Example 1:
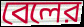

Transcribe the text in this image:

বেলের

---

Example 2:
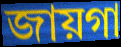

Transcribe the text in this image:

জায়গা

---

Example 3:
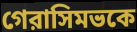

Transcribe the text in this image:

গেরাসিমভকে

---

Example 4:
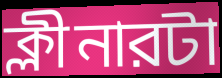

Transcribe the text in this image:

ক্লীনারটা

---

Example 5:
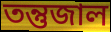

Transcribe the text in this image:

তন্তুজাল